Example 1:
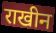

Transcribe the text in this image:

राखीन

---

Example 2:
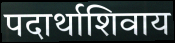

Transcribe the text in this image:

पदार्थाशिवाय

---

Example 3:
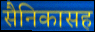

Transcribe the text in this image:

सैनिकासह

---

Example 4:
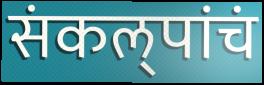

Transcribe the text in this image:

संकल्पांचं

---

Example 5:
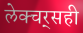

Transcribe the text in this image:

लेक्चर्सही